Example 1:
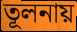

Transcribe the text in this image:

তূলনায়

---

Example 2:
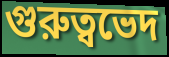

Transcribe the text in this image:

গুরুত্বভেদ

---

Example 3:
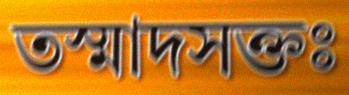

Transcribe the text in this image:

তস্মাদসক্তঃ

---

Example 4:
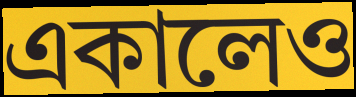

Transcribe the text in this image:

একালেও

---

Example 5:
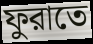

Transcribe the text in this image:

ফুরাতে